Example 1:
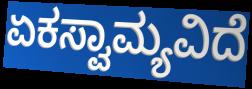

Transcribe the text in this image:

ಏಕಸ್ವಾಮ್ಯವಿದೆ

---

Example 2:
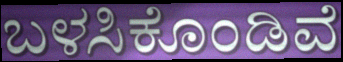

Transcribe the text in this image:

ಬಳಸಿಕೊಂಡಿವೆ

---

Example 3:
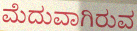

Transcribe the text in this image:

ಮೆದುವಾಗಿರುವ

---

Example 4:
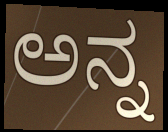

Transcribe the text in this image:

ಅನ್ನ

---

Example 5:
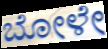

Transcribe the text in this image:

ಬೋಳೇ